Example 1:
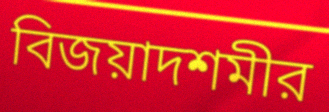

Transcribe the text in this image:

বিজয়াদশমীর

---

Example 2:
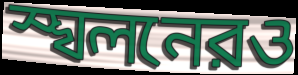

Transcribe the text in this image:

স্খলনেরও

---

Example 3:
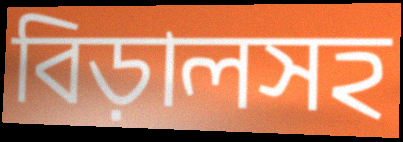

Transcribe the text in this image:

বিড়ালসহ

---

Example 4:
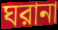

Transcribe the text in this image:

ঘরানা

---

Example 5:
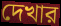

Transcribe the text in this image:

দেখার